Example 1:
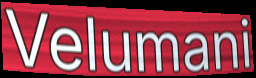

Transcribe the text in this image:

Velumani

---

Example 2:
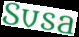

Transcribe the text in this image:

Susa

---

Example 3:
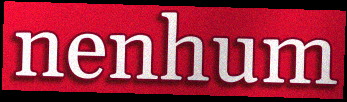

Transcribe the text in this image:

nenhum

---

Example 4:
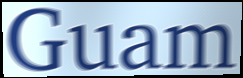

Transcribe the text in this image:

Guam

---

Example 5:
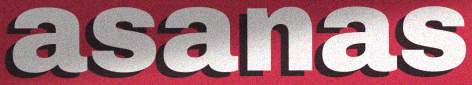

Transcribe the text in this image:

asanas